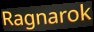
Ragnarok